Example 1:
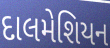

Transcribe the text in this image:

દાલમેશિયન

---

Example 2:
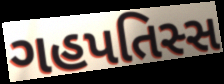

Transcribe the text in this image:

ગહપતિસ્સ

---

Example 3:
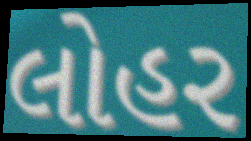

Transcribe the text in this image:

લોહર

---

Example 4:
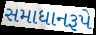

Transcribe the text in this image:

સમાધાનરૂપે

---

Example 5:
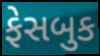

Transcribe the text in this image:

ફેસબુક